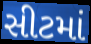
સીટમાં